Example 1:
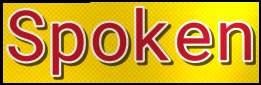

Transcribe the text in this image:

Spoken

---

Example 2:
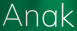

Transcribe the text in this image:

Anak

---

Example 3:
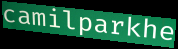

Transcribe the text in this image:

camilparkhe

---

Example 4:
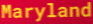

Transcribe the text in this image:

Maryland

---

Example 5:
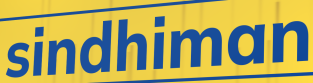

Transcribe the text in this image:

sindhiman